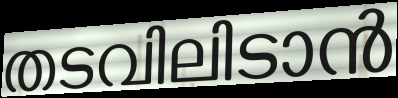
തടവിലിടാൻ